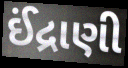
ઈંદ્રાણી